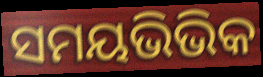
ସମୟଭିଭିକ